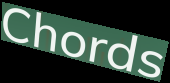
Chords